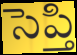
సెప్తి